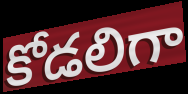
కోడలిగా